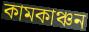
কামকাঞ্চন